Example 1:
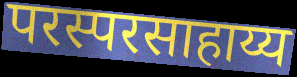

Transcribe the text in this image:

परस्परसाहाय्य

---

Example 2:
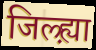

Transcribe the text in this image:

जिल्ह्य़ा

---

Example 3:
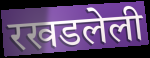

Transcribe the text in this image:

रखडलेली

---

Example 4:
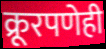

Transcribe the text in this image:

क्रूरपणेही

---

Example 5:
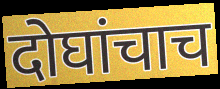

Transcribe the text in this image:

दोघांचाच